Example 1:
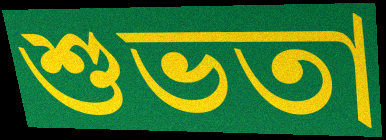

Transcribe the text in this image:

শুভতা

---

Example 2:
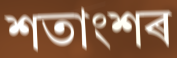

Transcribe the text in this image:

শতাংশৰ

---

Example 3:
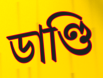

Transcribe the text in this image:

ডাণ্ডি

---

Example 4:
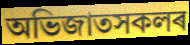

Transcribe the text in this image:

অভিজাতসকলৰ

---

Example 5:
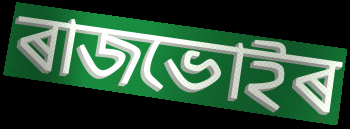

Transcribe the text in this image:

ৰাজভোইৰ